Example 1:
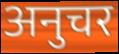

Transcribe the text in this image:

अनुचर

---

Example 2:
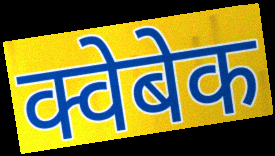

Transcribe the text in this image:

क्वेबेक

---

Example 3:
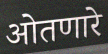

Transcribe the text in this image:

ओतणारे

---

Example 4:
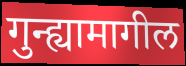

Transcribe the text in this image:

गुन्ह्यामागील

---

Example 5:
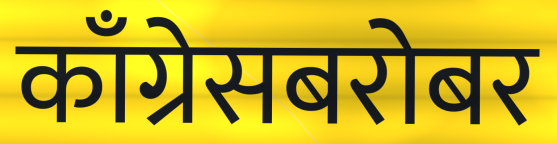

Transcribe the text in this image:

काँग्रेसबरोबर